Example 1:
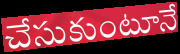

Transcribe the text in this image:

చేసుకుంటూనే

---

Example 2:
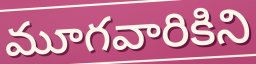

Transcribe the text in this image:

మూగవారికిని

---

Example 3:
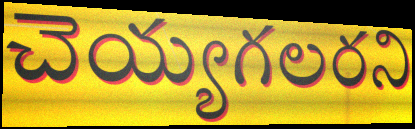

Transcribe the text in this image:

చెయ్యగలరని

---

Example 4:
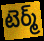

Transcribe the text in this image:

టెర్మ్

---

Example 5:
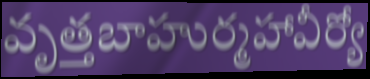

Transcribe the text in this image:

వృత్తబాహుర్మహావీర్యో